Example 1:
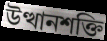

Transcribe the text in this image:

উত্থানশক্তি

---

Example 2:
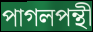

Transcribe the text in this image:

পাগলপন্থী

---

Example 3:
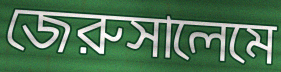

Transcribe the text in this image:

জেরুসালেমে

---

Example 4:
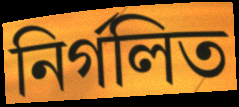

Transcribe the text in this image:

নির্গলিত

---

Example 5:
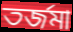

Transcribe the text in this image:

তর্জমা